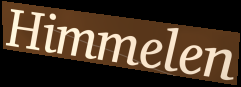
Himmelen